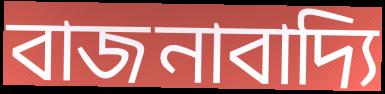
বাজনাবাদ্যি